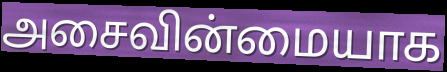
அசைவின்மையாக